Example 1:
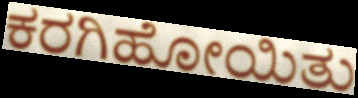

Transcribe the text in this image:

ಕರಗಿಹೋಯಿತು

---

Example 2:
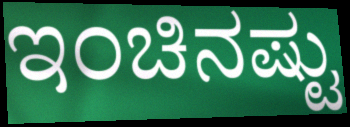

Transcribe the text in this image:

ಇಂಚಿನಷ್ಟು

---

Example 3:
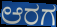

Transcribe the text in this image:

ಆರಗ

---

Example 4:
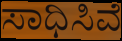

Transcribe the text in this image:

ಸಾಧಿಸಿವೆ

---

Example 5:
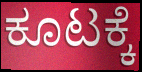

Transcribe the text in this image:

ಕೂಟಕ್ಕೆ